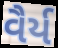
વૈર્ય